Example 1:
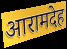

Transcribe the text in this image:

आरामदेह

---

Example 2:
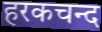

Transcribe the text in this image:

हरकचन्द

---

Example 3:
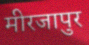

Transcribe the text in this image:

मीरजापुर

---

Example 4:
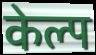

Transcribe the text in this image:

केल्प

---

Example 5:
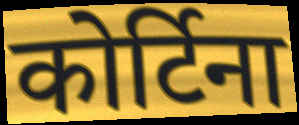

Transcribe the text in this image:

कोर्टिना